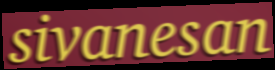
sivanesan